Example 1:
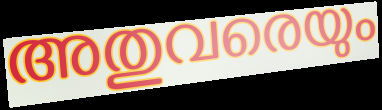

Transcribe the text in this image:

അതുവരെയും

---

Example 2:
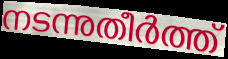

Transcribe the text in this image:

നടന്നുതീർത്ത്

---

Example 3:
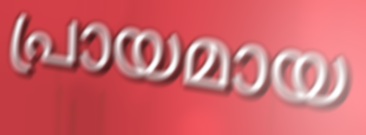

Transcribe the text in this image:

പ്രായമായ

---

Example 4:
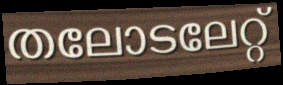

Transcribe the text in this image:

തലോടലേറ്റ്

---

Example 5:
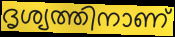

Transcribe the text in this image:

ദൃശ്യത്തിനാണ്